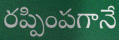
రప్పింపగానే